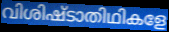
വിശിഷ്ടാതിഥികളേ